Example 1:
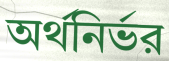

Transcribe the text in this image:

অর্থনির্ভর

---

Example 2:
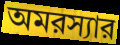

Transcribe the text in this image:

অমরস্যার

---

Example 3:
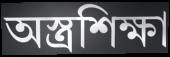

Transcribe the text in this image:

অস্ত্রশিক্ষা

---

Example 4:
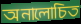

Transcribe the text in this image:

অনালোচিত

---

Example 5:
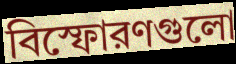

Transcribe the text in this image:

বিস্ফোরণগুলো